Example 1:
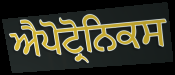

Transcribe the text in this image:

ਐਪੋਟ੍ਰੋਨਿਕਸ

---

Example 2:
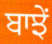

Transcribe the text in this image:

ਬਾਝੇਂ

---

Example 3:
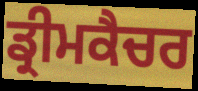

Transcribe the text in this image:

ਡ੍ਰੀਮਕੈਚਰ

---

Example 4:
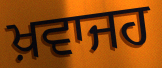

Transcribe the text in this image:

ਖ਼ਵਾਜਹ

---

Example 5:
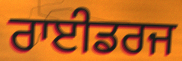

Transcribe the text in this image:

ਰਾਈਡਰਜ